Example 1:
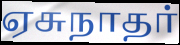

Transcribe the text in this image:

ஏசுநாதர்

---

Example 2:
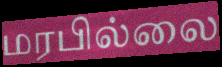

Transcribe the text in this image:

மரபில்லை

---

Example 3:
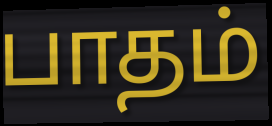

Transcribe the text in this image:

பாதம்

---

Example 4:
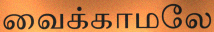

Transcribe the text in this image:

வைக்காமலே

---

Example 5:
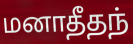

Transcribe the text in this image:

மனாதீதந்